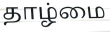
தாழ்மை